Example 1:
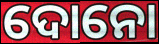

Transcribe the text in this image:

ଦୋନୋ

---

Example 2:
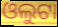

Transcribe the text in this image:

ଓଲୁଟା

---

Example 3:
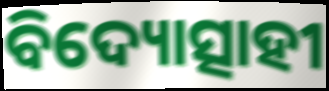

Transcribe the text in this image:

ବିଦ୍ୟୋତ୍ସାହୀ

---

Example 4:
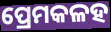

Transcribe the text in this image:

ପ୍ରେମକଳହ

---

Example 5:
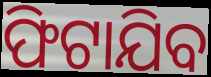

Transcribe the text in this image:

ଫିଟାଯିବ